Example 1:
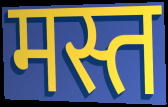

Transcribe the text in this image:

मस्त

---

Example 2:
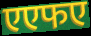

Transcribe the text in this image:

एएफए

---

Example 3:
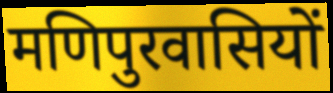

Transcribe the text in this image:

मणिपुरवासियों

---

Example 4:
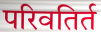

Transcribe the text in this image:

परिवतिर्त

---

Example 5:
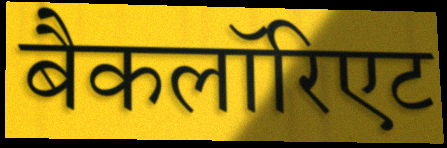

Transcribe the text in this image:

बैकलॉरिएट